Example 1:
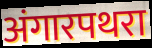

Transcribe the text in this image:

अंगारपथरा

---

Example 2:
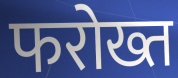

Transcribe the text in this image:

फरोख्‍त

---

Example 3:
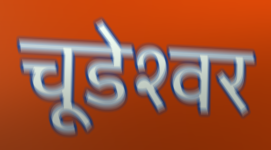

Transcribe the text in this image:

चूडेश्वर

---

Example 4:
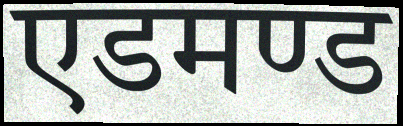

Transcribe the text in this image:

एडमण्ड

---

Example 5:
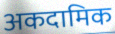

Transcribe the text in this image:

अकदामिक